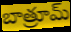
బాత్రూమ్